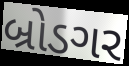
બ્રોડગર